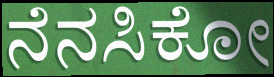
ನೆನಸಿಕೋ